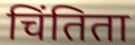
चिंतिता